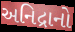
અનિદ્રાનો